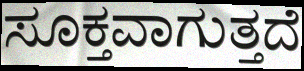
ಸೂಕ್ತವಾಗುತ್ತದೆ